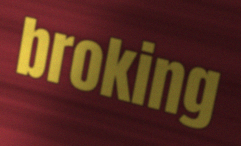
broking